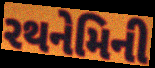
રથનેમિની